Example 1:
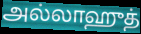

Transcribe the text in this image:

அல்லாஹுத்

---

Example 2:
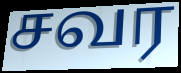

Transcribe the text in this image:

சவர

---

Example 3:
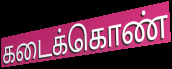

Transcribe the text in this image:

கடைக்கொண்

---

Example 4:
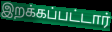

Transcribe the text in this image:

இறக்கப்பட்டார்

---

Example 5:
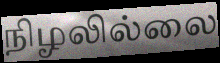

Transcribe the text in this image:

நிழலில்லை